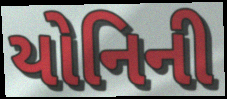
યોનિની